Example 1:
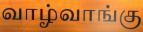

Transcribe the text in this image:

வாழ்வாங்கு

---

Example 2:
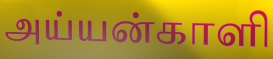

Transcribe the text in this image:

அய்யன்காளி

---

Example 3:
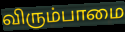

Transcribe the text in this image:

விரும்பாமை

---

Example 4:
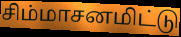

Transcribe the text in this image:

சிம்மாசனமிட்டு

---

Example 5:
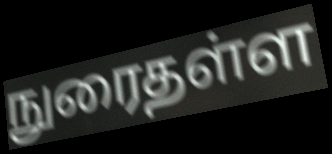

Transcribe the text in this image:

நுரைதள்ள